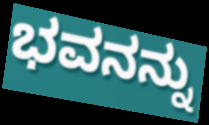
ಭವನನ್ನು